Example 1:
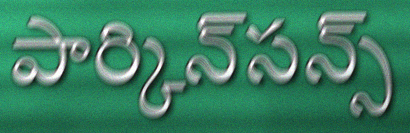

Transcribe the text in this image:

పార్కిన్‌సన్స్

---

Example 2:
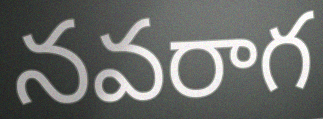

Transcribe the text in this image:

నవరాగ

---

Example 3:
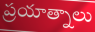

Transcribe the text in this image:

ప్రయాత్నాలు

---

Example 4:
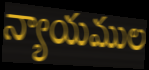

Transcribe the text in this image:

న్యాయముల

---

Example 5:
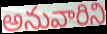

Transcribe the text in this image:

అనువారిని